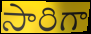
సారిగా